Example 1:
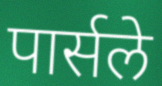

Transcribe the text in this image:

पार्सले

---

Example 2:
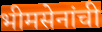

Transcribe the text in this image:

भीमसेनांची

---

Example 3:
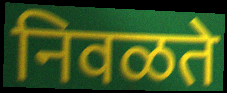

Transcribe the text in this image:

निवळते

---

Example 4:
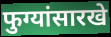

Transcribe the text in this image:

फुग्यांसारखे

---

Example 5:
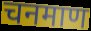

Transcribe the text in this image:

चनमाण